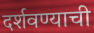
दर्शवण्याची